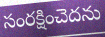
సంరక్షించెదను